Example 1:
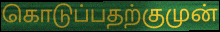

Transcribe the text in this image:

கொடுப்பதற்குமுன்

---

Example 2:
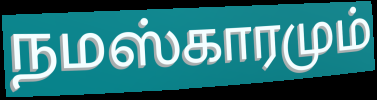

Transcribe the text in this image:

நமஸ்காரமும்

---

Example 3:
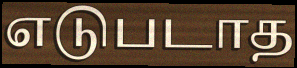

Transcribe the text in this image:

எடுபடாத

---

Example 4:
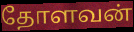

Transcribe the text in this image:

தோளவன்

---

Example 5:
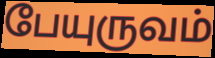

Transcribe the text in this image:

பேயுருவம்